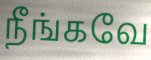
நீங்கவே